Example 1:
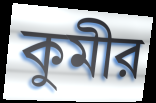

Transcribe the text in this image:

কুমীর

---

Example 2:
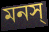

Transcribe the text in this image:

মনস্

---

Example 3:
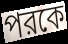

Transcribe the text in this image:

পরকে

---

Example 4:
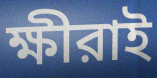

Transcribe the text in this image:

ক্ষীরাই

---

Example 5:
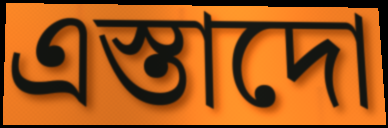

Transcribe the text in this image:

এস্তাদো